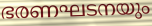
ഭരണഘടനയും